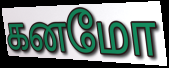
கனமோ